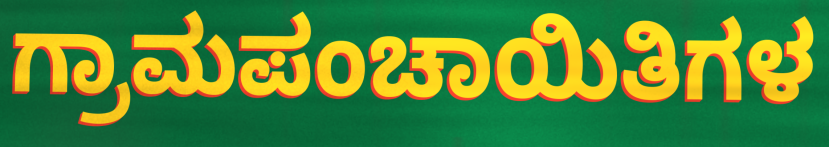
ಗ್ರಾಮಪಂಚಾಯಿತಿಗಳ